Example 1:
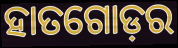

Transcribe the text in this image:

ହାତଗୋଡ଼ର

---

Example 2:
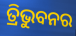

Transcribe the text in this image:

ତ୍ରିଭୁବନର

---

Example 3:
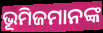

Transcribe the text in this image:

ଭୂମିଜମାନଙ୍କ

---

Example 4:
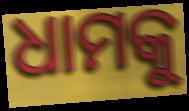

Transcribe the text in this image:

ଧାମକୁ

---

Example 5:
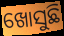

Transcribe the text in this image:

ଖୋସୁଛି